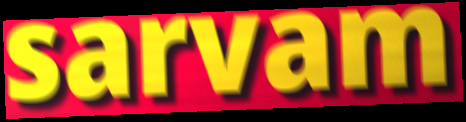
sarvam